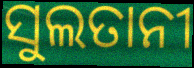
ସୁଲତାନୀ